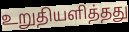
உறுதியளித்தது